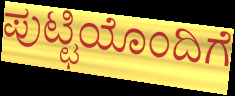
ಪುಟ್ಟಿಯೊಂದಿಗೆ